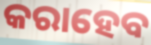
କରାହେବ